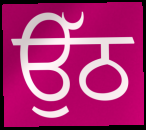
ਉੱਠ